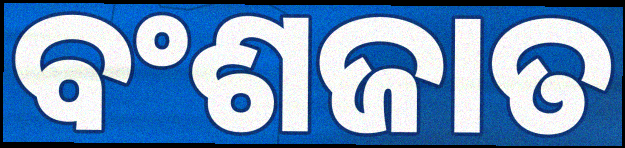
ବଂଶଜାତ